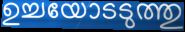
ഉച്ചയോടടുത്തു